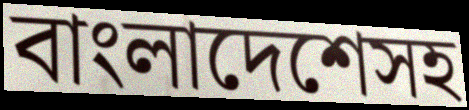
বাংলাদেশেসহ